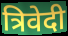
त्रिवेदी